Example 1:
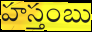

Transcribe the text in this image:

హస్తంబు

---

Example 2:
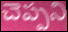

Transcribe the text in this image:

చెప్పని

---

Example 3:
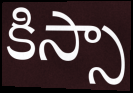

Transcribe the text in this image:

కిస్సా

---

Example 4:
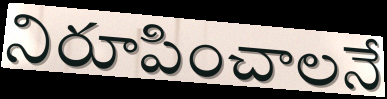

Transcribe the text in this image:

నిరూపించాలనే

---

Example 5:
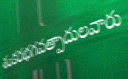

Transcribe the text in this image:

శంకరభగవత్పాదులవారు